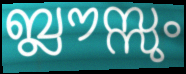
ബ്ലൗസ്സും